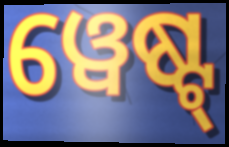
ୱେଷ୍ଟ୍